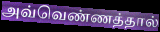
அவ்வெண்ணத்தால்